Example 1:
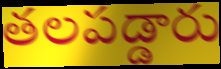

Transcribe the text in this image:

తలపడ్డారు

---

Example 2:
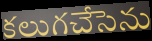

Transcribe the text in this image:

కలుగచేసెను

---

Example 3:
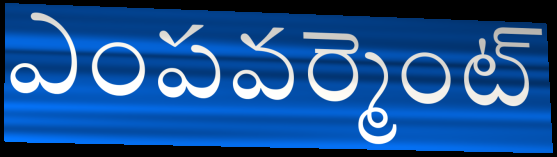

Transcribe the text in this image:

ఎంపవర్మెంట్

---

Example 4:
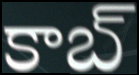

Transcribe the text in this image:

కాబ్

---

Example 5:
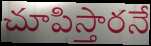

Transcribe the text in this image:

చూపిస్తారనే